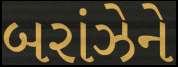
બરાંઝેને